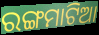
ରଙ୍ଗମାଟିଆ